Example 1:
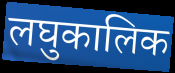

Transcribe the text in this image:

लघुकालिक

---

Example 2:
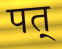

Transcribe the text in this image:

पत्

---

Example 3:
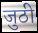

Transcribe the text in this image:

जुठी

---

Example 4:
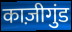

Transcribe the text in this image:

काज़ीगुंड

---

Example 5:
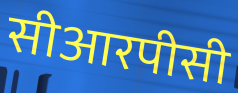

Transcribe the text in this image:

सीआरपीसी